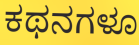
ಕಥನಗಳೂ